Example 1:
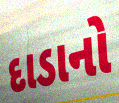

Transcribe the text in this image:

દાડાનો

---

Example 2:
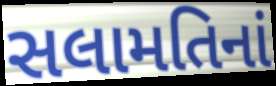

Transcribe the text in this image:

સલામતિનાં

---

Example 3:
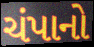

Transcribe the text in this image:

ચંપાનો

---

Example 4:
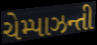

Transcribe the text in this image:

ચેમ્પાઝન્તી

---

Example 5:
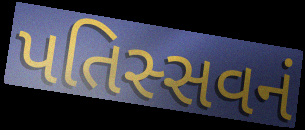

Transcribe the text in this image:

પતિસ્સવનં